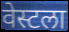
वेस्टला